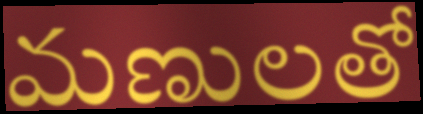
మణులతో